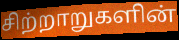
சிற்றாறுகளின்